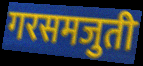
गरसमजुती